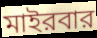
মাইরবার